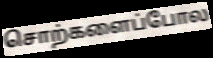
சொற்களைப்போல